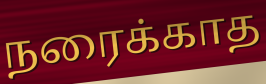
நரைக்காத